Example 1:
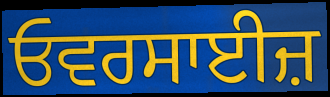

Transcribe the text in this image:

ਓਵਰਸਾਈਜ਼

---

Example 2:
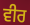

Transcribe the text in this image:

ਵੀਰ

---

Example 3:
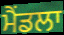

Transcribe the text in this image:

ਮੈਂਡਲਾ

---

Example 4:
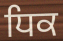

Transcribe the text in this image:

ਧਿਕ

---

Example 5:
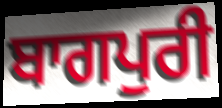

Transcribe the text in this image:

ਬਾਗਪੁਰੀ